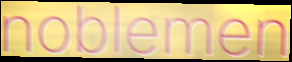
noblemen